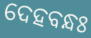
ଦେହବନ୍ଧଃ